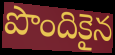
పొందికైన